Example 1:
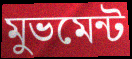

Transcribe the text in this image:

মুভমেন্ট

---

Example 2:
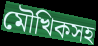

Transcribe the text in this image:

মৌখিকসহ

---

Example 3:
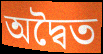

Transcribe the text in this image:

অদ্বৈত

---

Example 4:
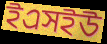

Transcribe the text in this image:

ইএসইউ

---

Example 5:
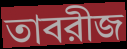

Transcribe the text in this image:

তাবরীজ